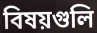
বিষয়গুলি